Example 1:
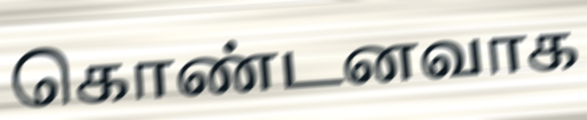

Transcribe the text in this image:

கொண்டனவாக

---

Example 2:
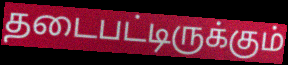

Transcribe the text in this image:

தடைபட்டிருக்கும்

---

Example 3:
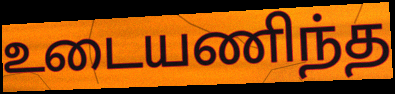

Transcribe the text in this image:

உடையணிந்த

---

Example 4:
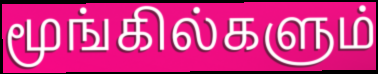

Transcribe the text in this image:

மூங்கில்களும்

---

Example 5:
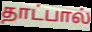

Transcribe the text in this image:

தாட்பால்